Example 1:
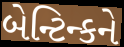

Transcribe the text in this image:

બેન્ટિન્કને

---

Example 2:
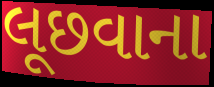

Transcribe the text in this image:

લૂછવાના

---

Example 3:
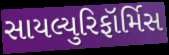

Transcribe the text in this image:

સાયલ્યુરિફૉર્મિસ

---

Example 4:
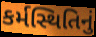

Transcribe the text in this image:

કર્મસ્થિતિનું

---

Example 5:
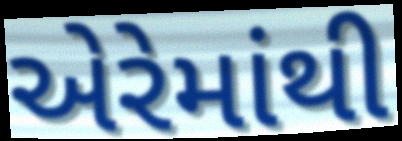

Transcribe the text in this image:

એરેમાંથી